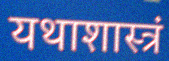
यथाशास्त्रं